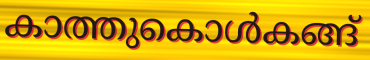
കാത്തുകൊൾകങ്ങ്